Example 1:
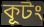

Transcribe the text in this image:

কূটং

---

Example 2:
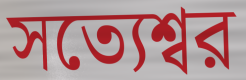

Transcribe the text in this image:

সত্যেশ্বর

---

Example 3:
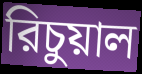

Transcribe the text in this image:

রিচুয়াল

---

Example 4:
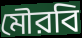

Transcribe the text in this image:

মৌরবি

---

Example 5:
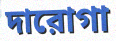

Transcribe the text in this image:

দারোগা